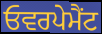
ਓਵਰਪੇਮੈਂਟ